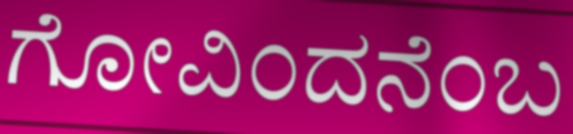
ಗೋವಿಂದನೆಂಬ